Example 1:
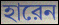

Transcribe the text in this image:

হারেন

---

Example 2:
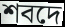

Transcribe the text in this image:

শবদে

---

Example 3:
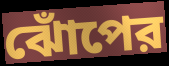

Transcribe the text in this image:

ঝোঁপের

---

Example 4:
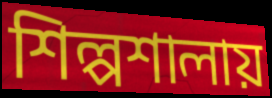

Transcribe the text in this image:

শিল্পশালায়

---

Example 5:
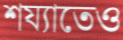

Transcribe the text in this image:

শয্যাতেও